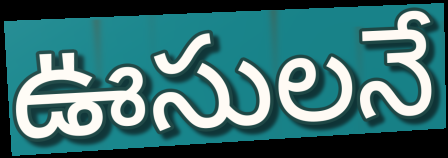
ఊసులనే